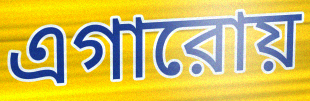
এগারোয়